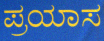
ಪ್ರಯಾಸ